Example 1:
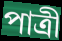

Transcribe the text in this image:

পাত্ৰী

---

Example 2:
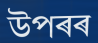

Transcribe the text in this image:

উপৰৰ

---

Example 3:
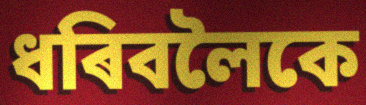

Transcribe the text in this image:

ধৰিবলৈকে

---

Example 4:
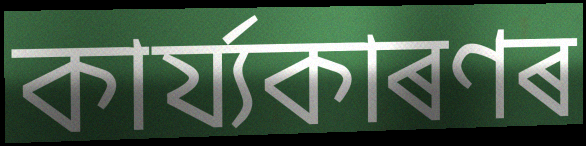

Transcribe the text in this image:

কাৰ্য্যকাৰণৰ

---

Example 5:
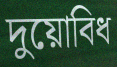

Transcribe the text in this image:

দুয়োবিধ